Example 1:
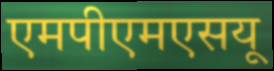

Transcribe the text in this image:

एमपीएमएसयू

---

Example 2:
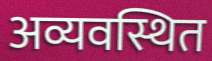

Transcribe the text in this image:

अव्यवस्थित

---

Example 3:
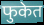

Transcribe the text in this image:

फुकेत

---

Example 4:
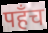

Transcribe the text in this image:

पहँच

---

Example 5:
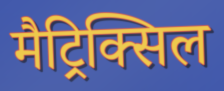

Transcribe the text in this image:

मैट्रिक्सिल